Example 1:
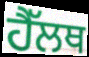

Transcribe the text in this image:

ਹੈੱਲਥ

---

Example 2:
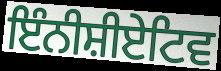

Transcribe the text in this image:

ਇੰਨੀਸ਼ੀਏਟਿਵ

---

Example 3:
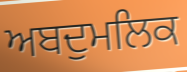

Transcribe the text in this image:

ਅਬਦੁਮਲਿਕ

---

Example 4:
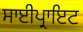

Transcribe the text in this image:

ਸਾਈਪ੍ਰਾਇਟ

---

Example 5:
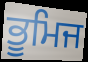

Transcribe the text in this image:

ਭੂਮਿਜ